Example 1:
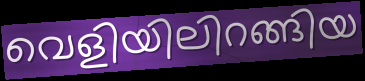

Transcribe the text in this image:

വെളിയിലിറങ്ങിയ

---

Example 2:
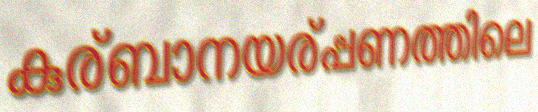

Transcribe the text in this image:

കുര്ബാനയര്പ്പണത്തിലെ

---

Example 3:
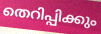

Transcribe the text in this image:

തെറിപ്പിക്കും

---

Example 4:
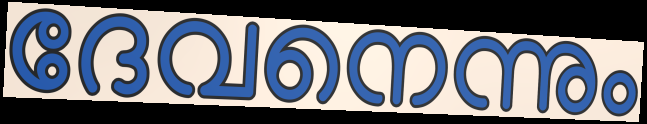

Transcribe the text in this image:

ദേവനെന്നും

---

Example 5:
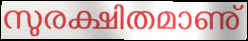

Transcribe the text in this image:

സുരക്ഷിതമാണു്